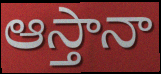
ఆస్తానా